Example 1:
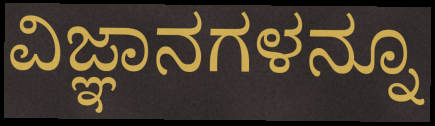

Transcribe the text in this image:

ವಿಜ್ಞಾನಗಳನ್ನೂ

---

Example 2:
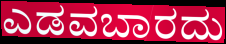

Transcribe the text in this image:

ಎಡವಬಾರದು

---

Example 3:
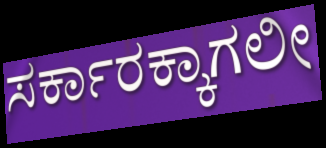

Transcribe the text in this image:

ಸರ್ಕಾರಕ್ಕಾಗಲೀ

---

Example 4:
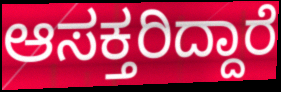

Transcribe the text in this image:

ಆಸಕ್ತರಿದ್ದಾರೆ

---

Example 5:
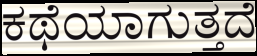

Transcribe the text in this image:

ಕಥೆಯಾಗುತ್ತದೆ